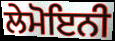
ਲੇਮੋਇਨੀ